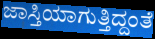
ಜಾಸ್ತಿಯಾಗುತ್ತಿದ್ದಂತೆ